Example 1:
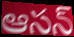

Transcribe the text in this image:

ఆసన్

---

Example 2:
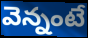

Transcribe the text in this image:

వెన్నంటే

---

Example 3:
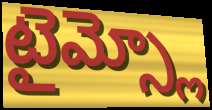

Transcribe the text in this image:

టైమ్స్లో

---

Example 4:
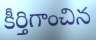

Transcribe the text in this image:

కీర్తిగాంచిన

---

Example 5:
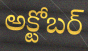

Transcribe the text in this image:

అక్టోబర్